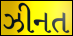
ઝીનત